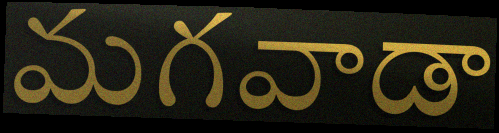
మగవాడా